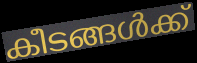
കീടങ്ങൾക്ക്